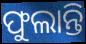
ଫୁଲାନ୍ତି